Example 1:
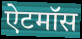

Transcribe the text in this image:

ऐटमॉस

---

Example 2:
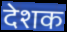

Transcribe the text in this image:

देशक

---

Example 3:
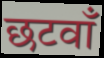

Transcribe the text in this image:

छटवाँ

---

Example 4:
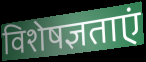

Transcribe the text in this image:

विशेषज्ञताएं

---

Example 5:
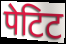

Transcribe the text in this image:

पेटिट